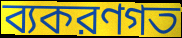
ব্যকরণগত